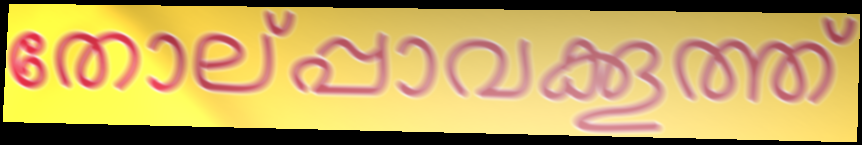
തോല്പ്പാവക്കൂത്ത്